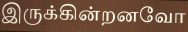
இருக்கின்றனவோ